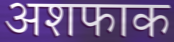
अशफाक